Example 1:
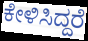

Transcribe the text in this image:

ಕೇಳಿಸಿದ್ದರೆ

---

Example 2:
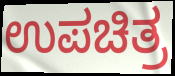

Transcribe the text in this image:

ಉಪಚಿತ್ರ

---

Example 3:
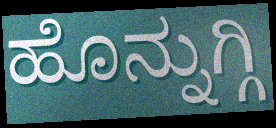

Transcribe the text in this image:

ಹೊನ್ನುಗ್ಗಿ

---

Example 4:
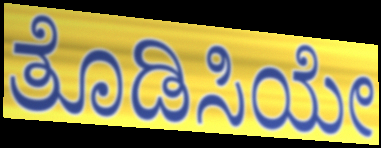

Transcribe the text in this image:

ತೊಡಿಸಿಯೇ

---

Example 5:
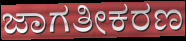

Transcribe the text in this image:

ಜಾಗತೀಕರಣ